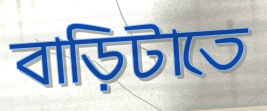
বাড়িটাতে